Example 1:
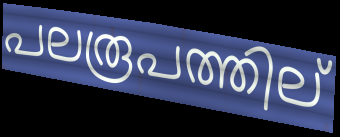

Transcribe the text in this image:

പലരൂപത്തില്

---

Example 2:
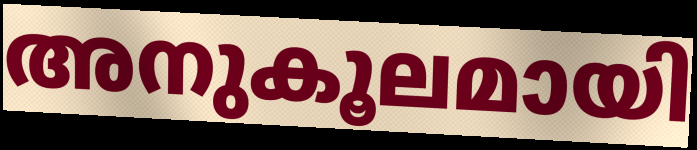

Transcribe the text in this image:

അനുകൂലമായി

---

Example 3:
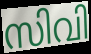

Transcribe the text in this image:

സിവി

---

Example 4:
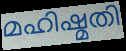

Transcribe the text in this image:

മഹിഷ്മതി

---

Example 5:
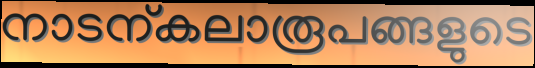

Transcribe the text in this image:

നാടന്കലാരൂപങ്ങളുടെ